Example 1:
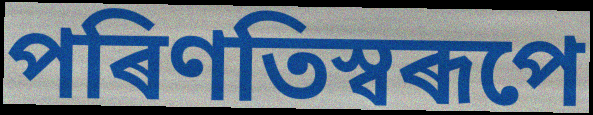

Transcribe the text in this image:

পৰিণতিস্বৰূপে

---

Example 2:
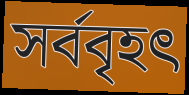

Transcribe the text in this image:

সৰ্ববৃহৎ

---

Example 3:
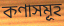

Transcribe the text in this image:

কণাসমূহ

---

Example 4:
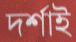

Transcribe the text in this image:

দৰ্শাই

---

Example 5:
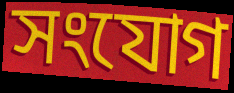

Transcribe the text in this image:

সংযোগ